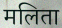
मलिता